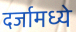
दर्जामध्ये